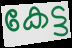
കേട്ട